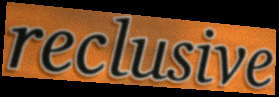
reclusive